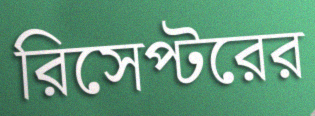
রিসেপ্টরের